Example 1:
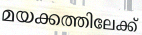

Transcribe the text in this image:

മയക്കത്തിലേക്ക്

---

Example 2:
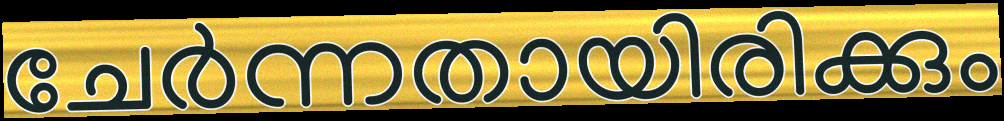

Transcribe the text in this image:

ചേർന്നതായിരിക്കും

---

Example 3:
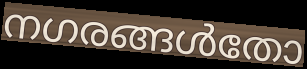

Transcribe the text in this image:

നഗരങ്ങൾതോ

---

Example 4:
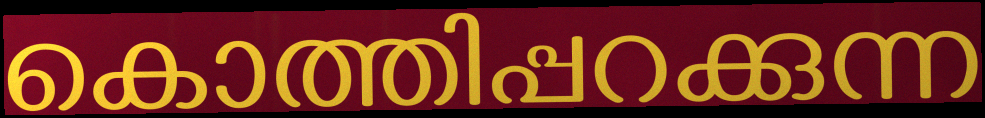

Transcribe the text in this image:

കൊത്തിപ്പറക്കുന്ന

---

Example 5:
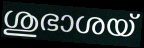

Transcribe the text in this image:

ശുഭാശയ്